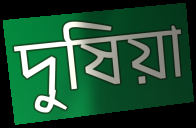
দুষিয়া